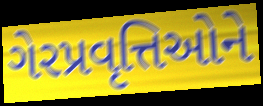
ગેરપ્રવૃત્તિઓને